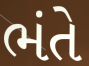
ભંતે